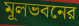
মূলভবনের